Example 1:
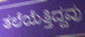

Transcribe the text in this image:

ತಲೆಯೆತ್ತಿದ್ದವು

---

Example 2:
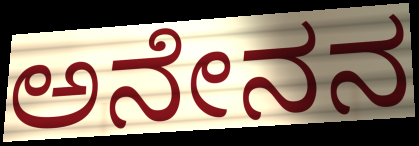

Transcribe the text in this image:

ಅನೇನನ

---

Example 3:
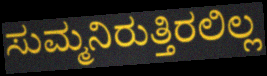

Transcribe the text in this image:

ಸುಮ್ಮನಿರುತ್ತಿರಲಿಲ್ಲ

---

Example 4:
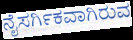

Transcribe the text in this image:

ನೈಸರ್ಗಿಕವಾಗಿರುವ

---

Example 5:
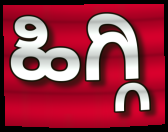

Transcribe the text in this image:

ಹಿಗ್ಗಿ